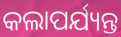
କଲାପର୍ଯ୍ୟନ୍ତ